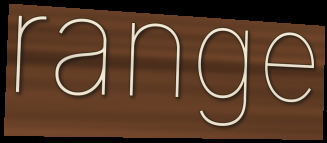
range